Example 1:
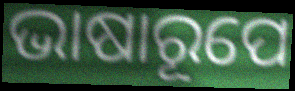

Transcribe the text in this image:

ଭାଷାରୂପେ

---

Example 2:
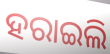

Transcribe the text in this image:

ହରାଇଲି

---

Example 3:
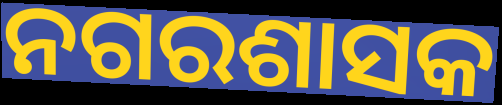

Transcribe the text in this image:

ନଗରଶାସକ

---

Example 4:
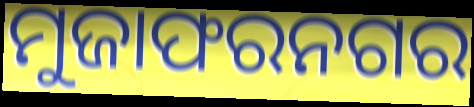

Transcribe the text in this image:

ମୁଜାଫରନଗର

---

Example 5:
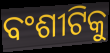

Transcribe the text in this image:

ବଂଶୀଟିକୁ